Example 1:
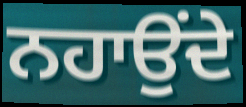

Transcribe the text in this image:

ਨਹਾਉਂਦੇ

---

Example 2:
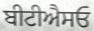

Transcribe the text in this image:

ਬੀਟੀਐਸਓ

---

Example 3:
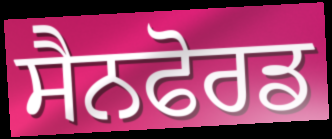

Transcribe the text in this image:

ਸੈਨਫੋਰਡ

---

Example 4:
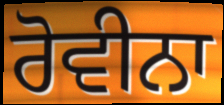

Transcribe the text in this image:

ਰੋਵੀਨਾ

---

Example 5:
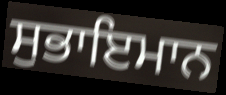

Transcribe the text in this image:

ਸੁਭਾਇਮਾਨ